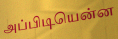
அப்பிடியென்ன